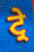
ਟ੍ਰੇ